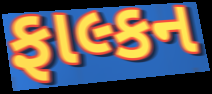
ફાલ્કન